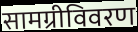
सामग्रीविवरण